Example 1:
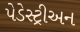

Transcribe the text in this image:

પેડેસ્ટ્રીઅન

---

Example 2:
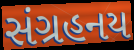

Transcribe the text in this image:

સંગ્રહનય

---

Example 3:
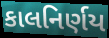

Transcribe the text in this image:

કાલનિર્ણય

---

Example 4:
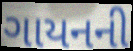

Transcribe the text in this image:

ગાયનની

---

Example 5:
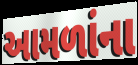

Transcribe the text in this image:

આમળાંના